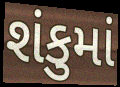
શંકુમાં